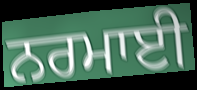
ਨਰਮਾਈ